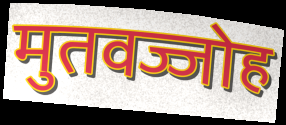
मुतवज्जोह